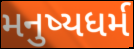
મનુષ્યધર્મ